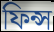
ফিন্স